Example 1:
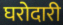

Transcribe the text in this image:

घरोदारी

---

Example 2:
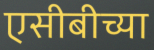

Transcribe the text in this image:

एसीबीच्या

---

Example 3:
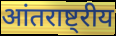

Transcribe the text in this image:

आंतराष्ट्रीय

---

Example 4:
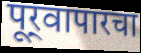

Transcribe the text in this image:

पूर्वापारचा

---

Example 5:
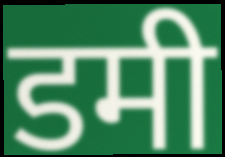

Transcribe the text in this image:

डमी